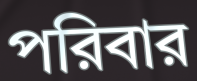
পরিবার